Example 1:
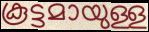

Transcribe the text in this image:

കൂട്ടമായുള്ള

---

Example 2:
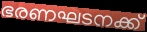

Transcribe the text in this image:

ഭരണഘടനക്ക്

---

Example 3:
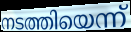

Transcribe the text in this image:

നടത്തിയെന്ന്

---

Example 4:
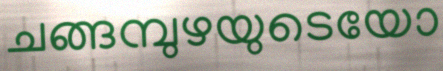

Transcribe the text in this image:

ചങ്ങമ്പുഴയുടെയോ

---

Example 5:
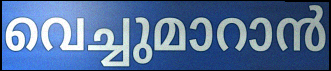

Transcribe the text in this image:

വെച്ചുമാറാൻ